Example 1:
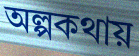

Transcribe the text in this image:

অল্পকথায়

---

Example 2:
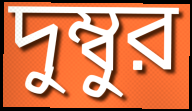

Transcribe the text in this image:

দুম্বুর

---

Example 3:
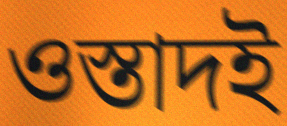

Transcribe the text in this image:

ওস্তাদই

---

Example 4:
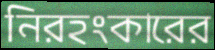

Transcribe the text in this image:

নিরহংকারের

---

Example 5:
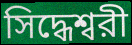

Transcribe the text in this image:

সিদ্ধেশ্বরী